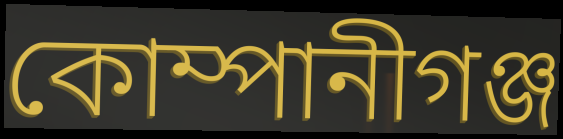
কোম্পানীগঞ্জ